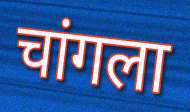
चांगला